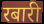
रबारी